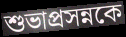
শুভাপ্রসন্নকে